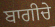
ਬਾਗੀਚੇ